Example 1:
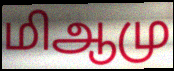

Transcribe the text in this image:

மிஆமு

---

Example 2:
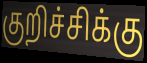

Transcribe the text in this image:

குறிச்சிக்கு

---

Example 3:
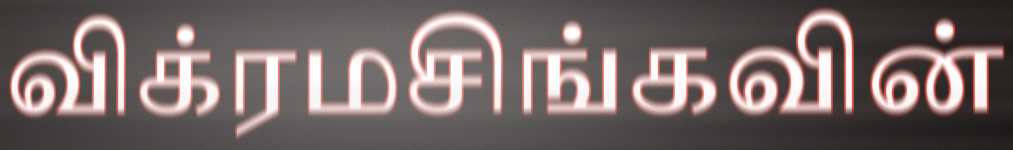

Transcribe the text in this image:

விக்ரமசிங்கவின்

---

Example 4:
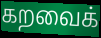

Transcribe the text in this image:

கறவைக்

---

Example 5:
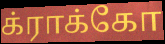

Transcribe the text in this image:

க்ராக்கோ